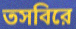
তসবিরে